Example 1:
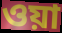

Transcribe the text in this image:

ওয়া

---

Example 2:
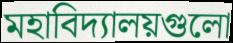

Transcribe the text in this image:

মহাবিদ্যালয়গুলো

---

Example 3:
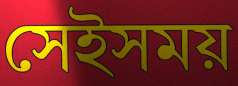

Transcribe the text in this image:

সেইসময়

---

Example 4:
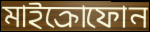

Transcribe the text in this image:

মাইক্রোফোন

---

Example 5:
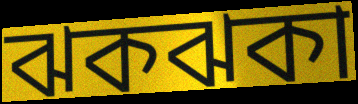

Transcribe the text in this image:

ঝকঝকা